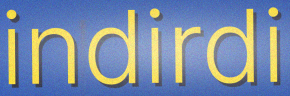
indirdi